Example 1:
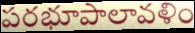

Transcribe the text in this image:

పరభూపాలావళిం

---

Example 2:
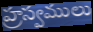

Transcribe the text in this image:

హ్రస్వములు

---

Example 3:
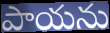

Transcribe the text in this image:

పాయను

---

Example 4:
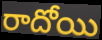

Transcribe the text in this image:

రాదోయి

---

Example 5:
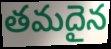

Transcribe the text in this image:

తమదైన